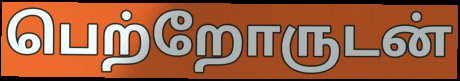
பெற்றோருடன்